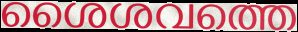
ശൈശവത്തെ